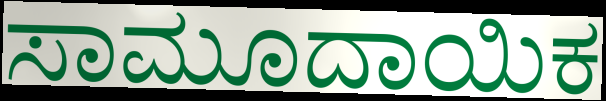
ಸಾಮೂದಾಯಿಕ